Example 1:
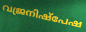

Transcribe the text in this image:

വജ്രനിഷ്പേഷ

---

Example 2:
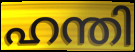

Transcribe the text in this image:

ഹന്തി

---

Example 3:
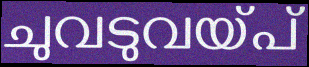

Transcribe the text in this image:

ചുവടുവയ്പ്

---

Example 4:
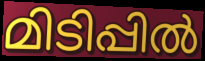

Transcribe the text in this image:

മിടിപ്പിൽ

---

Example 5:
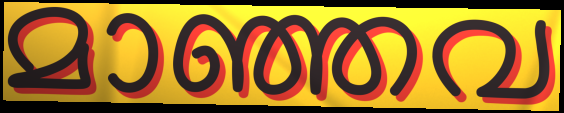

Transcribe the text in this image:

മാഞ്ഞവ